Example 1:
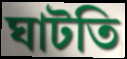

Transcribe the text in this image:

ঘাটতি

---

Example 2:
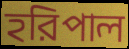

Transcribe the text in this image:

হরিপাল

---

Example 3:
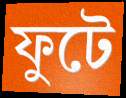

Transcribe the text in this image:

ফুটে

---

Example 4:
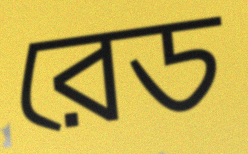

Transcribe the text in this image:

রেড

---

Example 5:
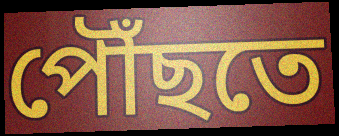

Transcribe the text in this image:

পৌঁছতে